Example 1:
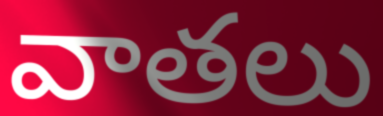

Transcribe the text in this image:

వాతలు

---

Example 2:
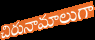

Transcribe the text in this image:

చిరునామాలుగా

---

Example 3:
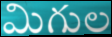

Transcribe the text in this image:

మిగుల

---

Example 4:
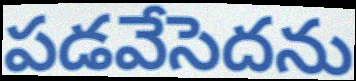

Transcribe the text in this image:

పడవేసెదను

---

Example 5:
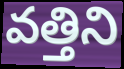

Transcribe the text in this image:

వత్తిని